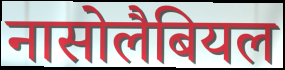
नासोलैबियल